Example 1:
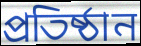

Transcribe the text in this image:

প্রতিষ্ঠান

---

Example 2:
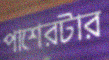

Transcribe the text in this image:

পাশেরটার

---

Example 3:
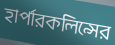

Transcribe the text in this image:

হার্পারকলিন্সের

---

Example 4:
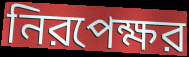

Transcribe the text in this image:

নিরপেক্ষর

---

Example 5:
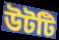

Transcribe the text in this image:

উটটি